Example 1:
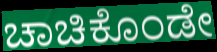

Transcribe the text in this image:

ಚಾಚಿಕೊಂಡೇ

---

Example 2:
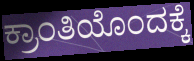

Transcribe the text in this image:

ಕ್ರಾಂತಿಯೊಂದಕ್ಕೆ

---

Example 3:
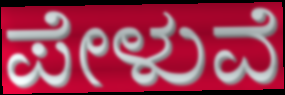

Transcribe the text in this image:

ಪೇಳುವೆ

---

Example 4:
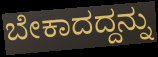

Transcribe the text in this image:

ಬೇಕಾದದ್ದನ್ನು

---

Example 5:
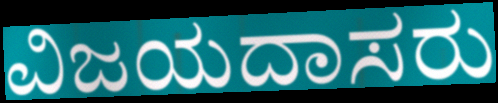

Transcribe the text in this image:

ವಿಜಯದಾಸರು